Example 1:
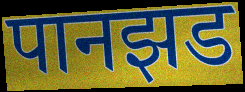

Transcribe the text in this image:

पानझड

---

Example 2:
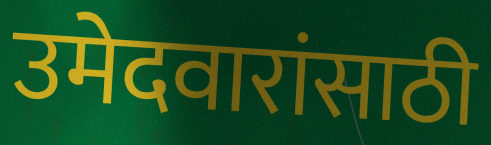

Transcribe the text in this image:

उमेदवारांसाठी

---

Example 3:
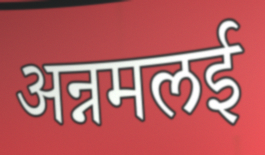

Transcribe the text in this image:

अन्नमलई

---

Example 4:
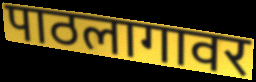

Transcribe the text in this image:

पाठलागावर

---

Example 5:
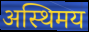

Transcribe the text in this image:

अस्थिमय